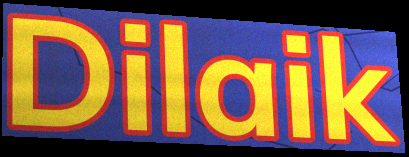
Dilaik